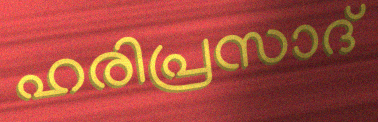
ഹരിപ്രസാദ്